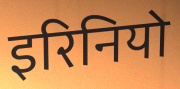
इरिनियो